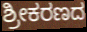
ಶ್ರೀಕರಣದ